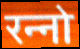
रन्नो